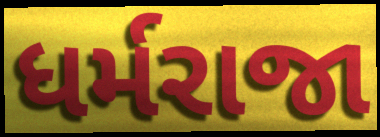
ધર્મરાજા